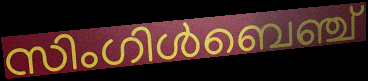
സിംഗിൾബെഞ്ച്